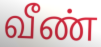
வீண்